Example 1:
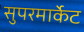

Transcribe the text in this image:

सुपरमार्केट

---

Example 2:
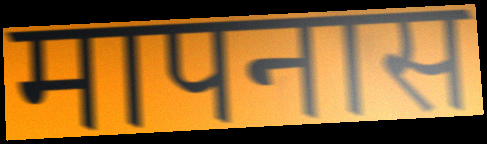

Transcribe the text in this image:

मापनास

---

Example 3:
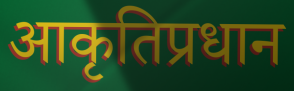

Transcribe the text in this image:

आकृतिप्रधान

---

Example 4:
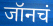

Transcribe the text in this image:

जॉनचं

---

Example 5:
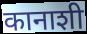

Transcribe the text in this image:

कानाशी